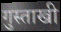
गुस्ताखी